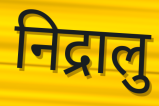
निद्रालु